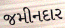
જમીનદાર